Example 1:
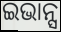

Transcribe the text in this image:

ଇଭାନ୍ସ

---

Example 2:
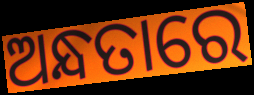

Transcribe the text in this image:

ଅନ୍ଧତାରେ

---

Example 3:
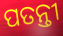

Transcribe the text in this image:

ପତନ୍ତୀ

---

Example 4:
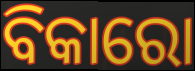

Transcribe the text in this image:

ବିକାରୋ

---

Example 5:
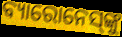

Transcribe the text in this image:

ବ୍ୟାରୋନେସ୍‌ଙ୍କୁ